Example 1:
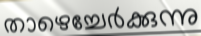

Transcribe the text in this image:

താഴെച്ചേർക്കുന്നു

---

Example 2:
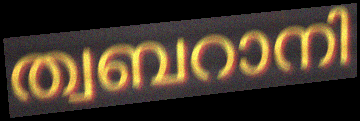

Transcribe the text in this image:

ത്വബറാനി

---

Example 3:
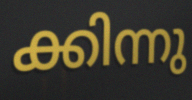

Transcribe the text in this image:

ക്കിന്നു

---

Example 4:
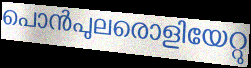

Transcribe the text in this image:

പൊൻപുലരൊളിയേറ്റു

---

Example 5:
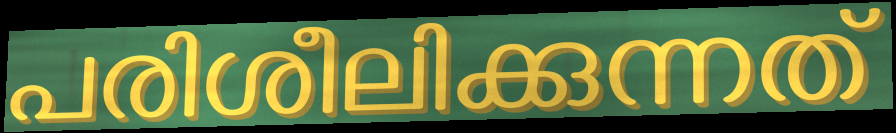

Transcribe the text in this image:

പരിശീലിക്കുന്നത്